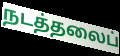
நடத்தலைப்